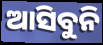
ଆସିବୁନି